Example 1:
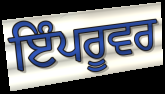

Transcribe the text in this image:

ਇੰਪਰੂਵਰ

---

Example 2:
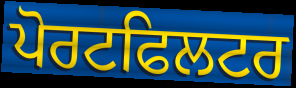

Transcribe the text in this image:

ਪੋਰਟਫਿਲਟਰ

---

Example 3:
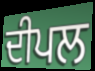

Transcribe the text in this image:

ਦੀਪਲ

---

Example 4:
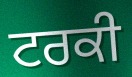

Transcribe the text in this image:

ਟਰਕੀ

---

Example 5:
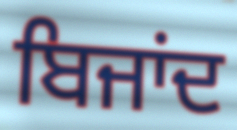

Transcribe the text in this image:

ਬਿਜਾਂਦ